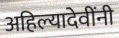
अहिल्यादेवींनी